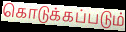
கொடுக்கப்படும்